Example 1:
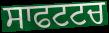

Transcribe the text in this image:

ਸਾਫਟਟਚ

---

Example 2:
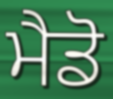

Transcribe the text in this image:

ਮੈਡੋ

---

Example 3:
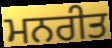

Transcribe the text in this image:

ਮਨਰੀਤ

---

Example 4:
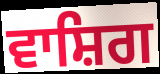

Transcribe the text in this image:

ਵਾਸ਼ਿਗ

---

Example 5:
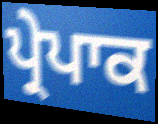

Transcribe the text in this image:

ਪ੍ਰੇਪਾਕ